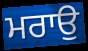
ਮਰਾਉ